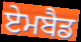
ਏਮਬੈਡ